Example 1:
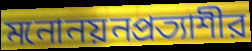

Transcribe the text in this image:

মনোনয়নপ্রত্যাশীর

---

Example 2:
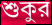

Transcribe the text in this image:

শুকুর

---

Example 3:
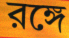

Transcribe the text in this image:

রঙ্গে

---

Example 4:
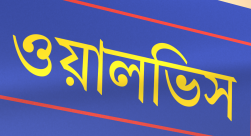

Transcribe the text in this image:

ওয়ালভিস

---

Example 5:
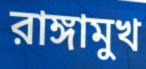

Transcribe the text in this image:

রাঙ্গামুখ